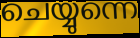
ചെയ്യുന്നെ